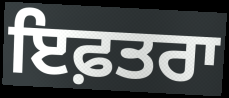
ਇਫ਼ਤਰਾ